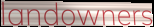
landowners